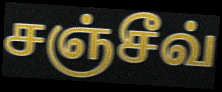
சஞ்சீவ்